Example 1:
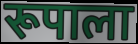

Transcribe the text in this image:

रूपाला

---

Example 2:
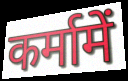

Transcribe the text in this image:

कर्मामें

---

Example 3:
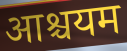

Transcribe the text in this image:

आश्चयम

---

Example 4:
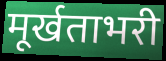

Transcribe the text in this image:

मूर्खताभरी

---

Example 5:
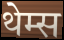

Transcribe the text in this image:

थेम्स